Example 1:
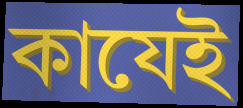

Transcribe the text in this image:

কাযেই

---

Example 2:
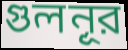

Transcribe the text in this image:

গুলনূর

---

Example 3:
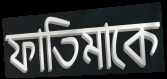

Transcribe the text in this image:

ফাতিমাকে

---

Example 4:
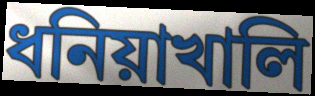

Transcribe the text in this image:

ধনিয়াখালি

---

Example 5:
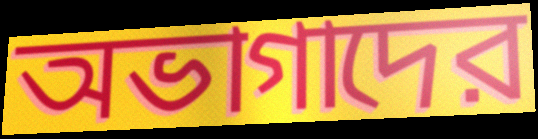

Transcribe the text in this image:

অভাগাদের